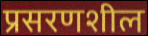
प्रसरणशील